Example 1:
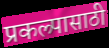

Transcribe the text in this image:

प्रकल्पासाठी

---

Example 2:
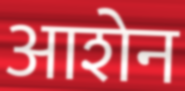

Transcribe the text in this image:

आशेन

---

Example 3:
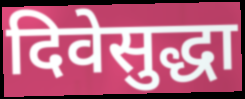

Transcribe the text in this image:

दिवेसुद्धा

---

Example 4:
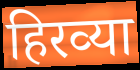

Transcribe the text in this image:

हिरव्‍या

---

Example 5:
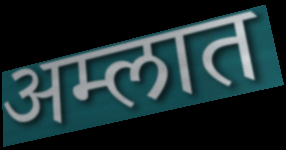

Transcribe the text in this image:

अम्लात